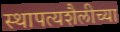
स्थापत्यशैलीच्या